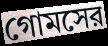
গোমসের